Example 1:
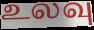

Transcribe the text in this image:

உலவு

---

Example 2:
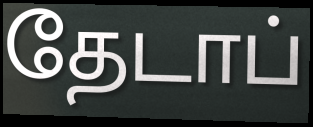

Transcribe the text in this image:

தேடாப்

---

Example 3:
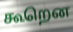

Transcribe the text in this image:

கூறென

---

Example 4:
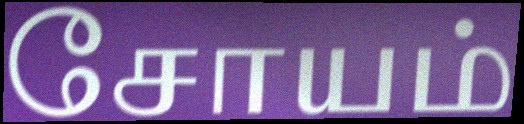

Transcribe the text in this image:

சோயம்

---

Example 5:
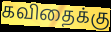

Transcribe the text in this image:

கவிதைக்கு